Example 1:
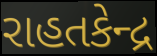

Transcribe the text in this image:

રાહતકેન્દ્ર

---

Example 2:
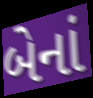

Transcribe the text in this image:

બેનાં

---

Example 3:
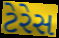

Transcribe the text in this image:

ટેરેસ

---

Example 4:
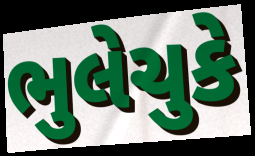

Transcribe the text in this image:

ભુલેચુકે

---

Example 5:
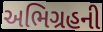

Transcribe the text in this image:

અભિગ્રહની